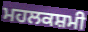
ਮਹਲਕਸ਼ਮੀ